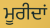
ਮੂਰੀਦਾਂ